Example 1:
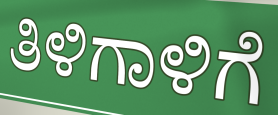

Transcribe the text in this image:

ತಿಳಿಗಾಳಿಗೆ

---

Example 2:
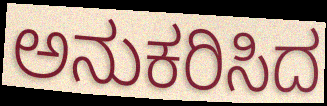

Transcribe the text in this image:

ಅನುಕರಿಸಿದ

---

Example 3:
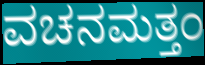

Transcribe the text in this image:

ವಚನಮತ್ತಂ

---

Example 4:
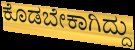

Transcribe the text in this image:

ಕೊಡಬೇಕಾಗಿದ್ದು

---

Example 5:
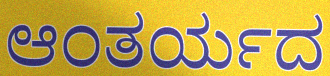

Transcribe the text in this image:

ಆಂತರ್ಯದ